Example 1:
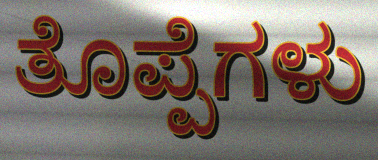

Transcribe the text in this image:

ತೊಪ್ಪೆಗಳು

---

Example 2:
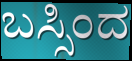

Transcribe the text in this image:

ಬಸ್ಸಿಂದ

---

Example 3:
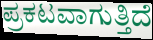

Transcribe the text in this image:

ಪ್ರಕಟವಾಗುತ್ತಿದೆ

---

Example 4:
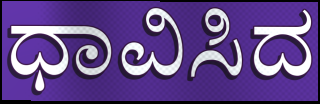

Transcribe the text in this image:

ಧಾವಿಸಿದ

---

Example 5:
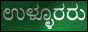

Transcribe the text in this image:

ಉಳ್ಳೂರರು